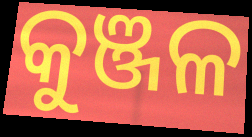
କୁଞ୍ଜଳ